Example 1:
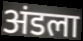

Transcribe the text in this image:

अंडला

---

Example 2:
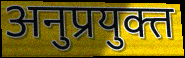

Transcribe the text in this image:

अनुप्रयुक्त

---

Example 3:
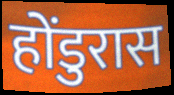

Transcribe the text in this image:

होंडुरास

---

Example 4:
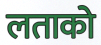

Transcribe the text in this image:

लताको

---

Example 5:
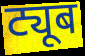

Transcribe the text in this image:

ट्यूब